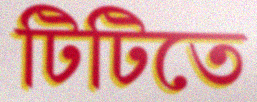
টিটিতে